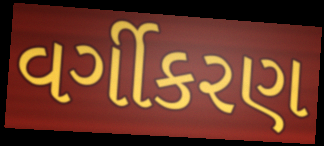
વર્ગીકરણ